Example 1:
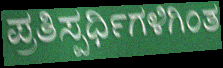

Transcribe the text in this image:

ಪ್ರತಿಸ್ಪರ್ಧಿಗಳಿಗಿಂತ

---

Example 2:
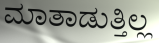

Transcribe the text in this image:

ಮಾತಾಡುತ್ತಿಲ್ಲ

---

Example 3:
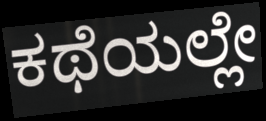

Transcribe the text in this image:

ಕಥೆಯಲ್ಲೇ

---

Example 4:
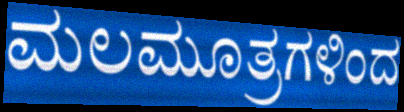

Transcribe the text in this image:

ಮಲಮೂತ್ರಗಳಿಂದ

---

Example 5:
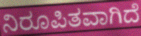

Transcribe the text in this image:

ನಿರೂಪಿತವಾಗಿದೆ